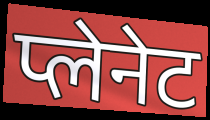
प्लेनेट